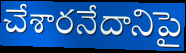
చేశారనేదానిపై